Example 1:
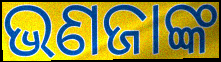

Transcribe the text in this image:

ଭଣଜାଙ୍କ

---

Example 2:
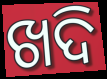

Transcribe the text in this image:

ଖଦି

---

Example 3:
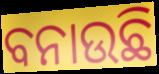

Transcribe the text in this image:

ବନାଉଛି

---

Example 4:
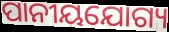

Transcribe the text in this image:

ପାନୀୟଯୋଗ୍ୟ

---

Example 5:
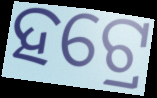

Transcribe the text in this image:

ହଟ୍ରେ